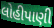
લોહીપાણી